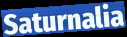
Saturnalia